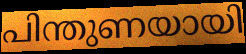
പിന്തുണയായി